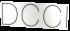
DCCI